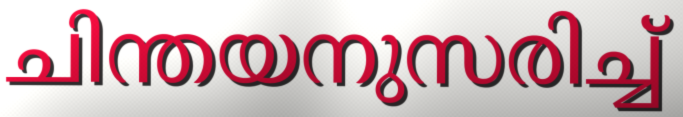
ചിന്തയനുസരിച്ച്